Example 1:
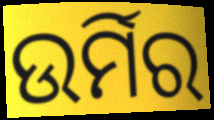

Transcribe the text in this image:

ଉର୍ମିର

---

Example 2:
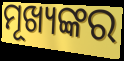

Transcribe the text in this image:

ମୂଖ୍ୟଙ୍କର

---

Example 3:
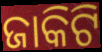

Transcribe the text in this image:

ଜାକିଟି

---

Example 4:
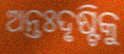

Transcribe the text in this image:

ଅନ୍ତଃଦୃଷ୍ଟିକୁ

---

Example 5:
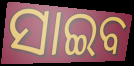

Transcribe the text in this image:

ସାଇବ